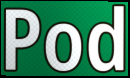
Pod